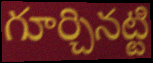
గూర్చినట్టి